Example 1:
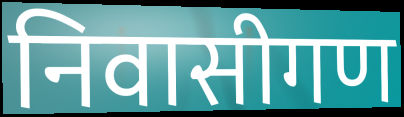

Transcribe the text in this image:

निवासीगण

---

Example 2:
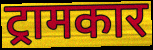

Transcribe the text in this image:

ट्रामकार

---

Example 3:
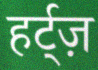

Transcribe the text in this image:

हर्ट्ज़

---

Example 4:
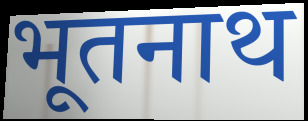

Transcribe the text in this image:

भूतनाथ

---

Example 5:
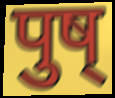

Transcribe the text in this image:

पुष्